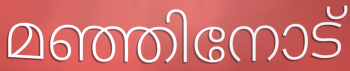
മഞ്ഞിനോട്